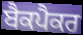
ਬੈਕਪੈਕਰ